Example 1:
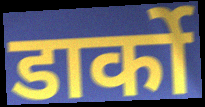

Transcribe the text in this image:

डार्को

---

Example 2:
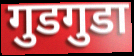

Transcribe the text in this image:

गुडगुडा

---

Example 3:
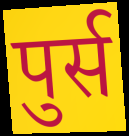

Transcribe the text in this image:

पुर्स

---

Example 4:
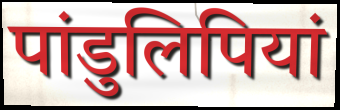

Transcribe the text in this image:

पांडुलिपियां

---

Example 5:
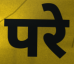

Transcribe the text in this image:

परे